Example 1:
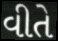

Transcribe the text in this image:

વીતે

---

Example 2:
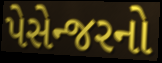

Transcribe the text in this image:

પેસેન્જરનો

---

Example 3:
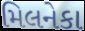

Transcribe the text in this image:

મિલનેકા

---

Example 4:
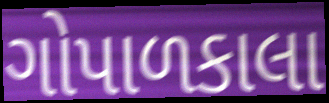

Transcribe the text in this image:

ગોપાળકાલા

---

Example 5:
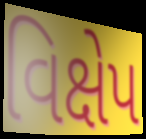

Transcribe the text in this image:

વિક્ષેપ